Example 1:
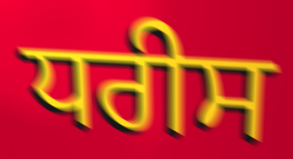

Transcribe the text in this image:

ਧਰੀਸ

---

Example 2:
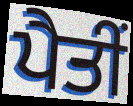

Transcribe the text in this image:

ਪੈਤੀਂ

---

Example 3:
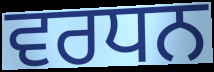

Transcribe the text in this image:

ਵਰਧਨ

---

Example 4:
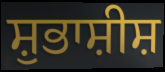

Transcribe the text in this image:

ਸ਼ੁਭਾਸ਼ੀਸ਼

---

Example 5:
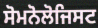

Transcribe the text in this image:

ਸੋਮਨੋਲੋਜਿਸਟ